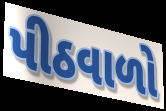
પીઠવાળો